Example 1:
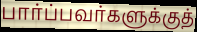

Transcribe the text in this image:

பார்ப்பவர்களுக்குத்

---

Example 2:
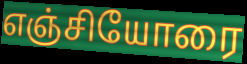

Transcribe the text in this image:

எஞ்சியோரை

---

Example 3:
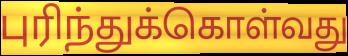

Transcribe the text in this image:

புரிந்துக்கொள்வது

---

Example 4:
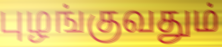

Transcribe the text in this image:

புழங்குவதும்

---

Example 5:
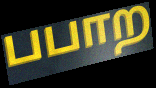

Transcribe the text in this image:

பபாற